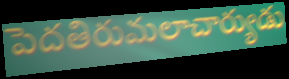
పెదతిరుమలాచార్యుడు